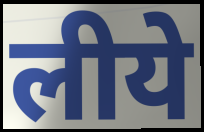
लीये